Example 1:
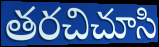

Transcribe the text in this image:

తరచిచూసి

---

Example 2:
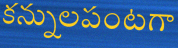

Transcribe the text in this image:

కన్నులపంటగా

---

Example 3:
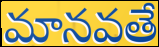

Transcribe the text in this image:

మానవతే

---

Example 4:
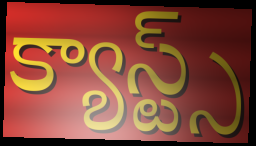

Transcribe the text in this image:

క్యాస్ట్స్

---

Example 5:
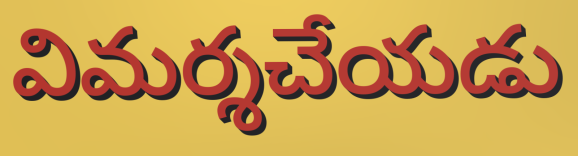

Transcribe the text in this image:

విమర్శచేయడు